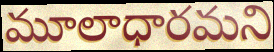
మూలాధారమని